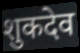
शुकदेव